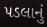
પડલાનું